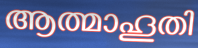
ആത്മാഹൂതി